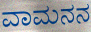
ವಾಮನನ